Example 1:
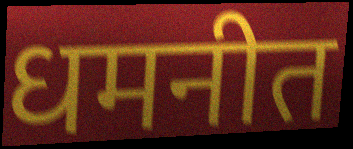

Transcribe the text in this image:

धमनीत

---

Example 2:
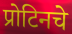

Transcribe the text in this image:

प्रोटिनचे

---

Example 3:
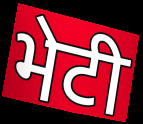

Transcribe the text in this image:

भेटी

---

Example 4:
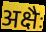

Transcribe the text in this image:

अक्षैः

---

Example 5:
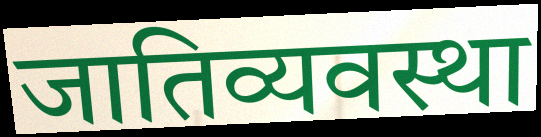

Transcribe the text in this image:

जातिव्यवस्था